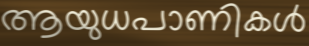
ആയുധപാണികൾ